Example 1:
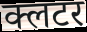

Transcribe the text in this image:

क्लटर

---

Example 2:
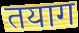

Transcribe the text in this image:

तयाग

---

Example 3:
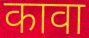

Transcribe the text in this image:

कावा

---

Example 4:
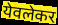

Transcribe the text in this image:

येवलेकर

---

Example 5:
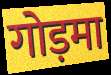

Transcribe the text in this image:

गोड़मा